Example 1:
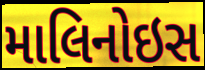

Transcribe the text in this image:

માલિનોઇસ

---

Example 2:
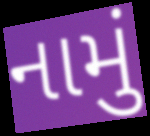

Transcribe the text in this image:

નામું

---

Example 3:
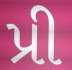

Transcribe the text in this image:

પ્રી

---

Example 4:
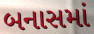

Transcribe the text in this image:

બનાસમાં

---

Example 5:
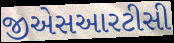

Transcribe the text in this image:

જીએસઆરટીસી